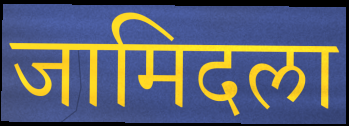
जामिदला